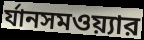
র্যানসমওয়্যার